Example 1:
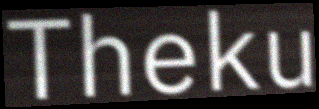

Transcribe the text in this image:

Theku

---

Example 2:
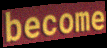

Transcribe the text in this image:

become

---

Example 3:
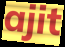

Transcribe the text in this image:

ajit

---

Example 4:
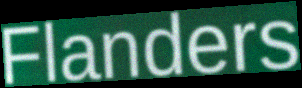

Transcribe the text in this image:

Flanders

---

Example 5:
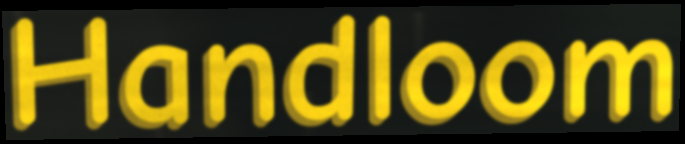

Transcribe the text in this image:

Handloom